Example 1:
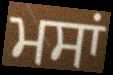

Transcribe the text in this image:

ਮਸਾਂ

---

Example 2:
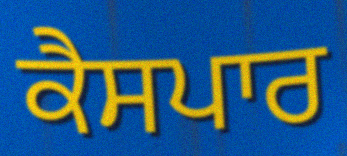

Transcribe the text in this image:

ਕੈਸਪਾਰ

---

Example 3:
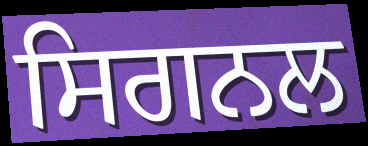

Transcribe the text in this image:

ਸਿਗਨਲ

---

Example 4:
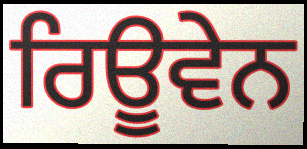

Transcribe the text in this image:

ਰਿਊਵੇਨ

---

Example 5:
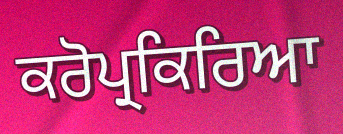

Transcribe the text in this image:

ਕਰੋਪ੍ਰਕਿਰਿਆ